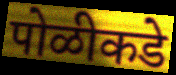
पोळीकडे